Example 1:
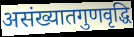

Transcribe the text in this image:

असंख्यातगुणवृद्धि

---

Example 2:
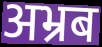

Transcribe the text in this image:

अभ्रब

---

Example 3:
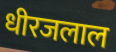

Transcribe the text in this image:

धीरजलाल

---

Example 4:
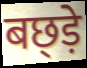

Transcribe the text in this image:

बछ्ड़े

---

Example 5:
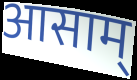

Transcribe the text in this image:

आसाम्